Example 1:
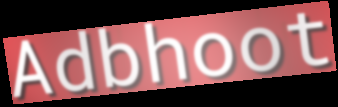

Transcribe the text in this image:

Adbhoot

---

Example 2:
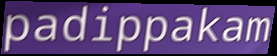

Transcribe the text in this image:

padippakam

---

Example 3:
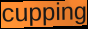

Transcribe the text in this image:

cupping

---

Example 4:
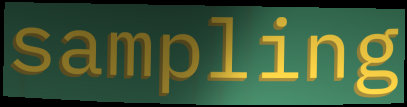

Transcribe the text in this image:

sampling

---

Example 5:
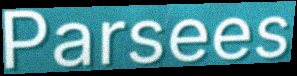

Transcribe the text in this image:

Parsees